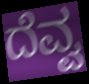
ದೆವ್ವ